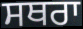
ਸਥਰਾ